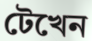
টেখেন